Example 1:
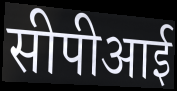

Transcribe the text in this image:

सीपीआई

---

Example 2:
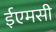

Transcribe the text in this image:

ईएमसी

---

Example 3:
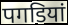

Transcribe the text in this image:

पगडियां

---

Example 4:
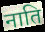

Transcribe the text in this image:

नाति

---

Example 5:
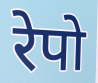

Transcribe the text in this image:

रेपो